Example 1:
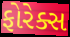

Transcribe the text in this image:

ફોરેક્સ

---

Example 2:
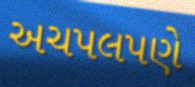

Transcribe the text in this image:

અચપલપણે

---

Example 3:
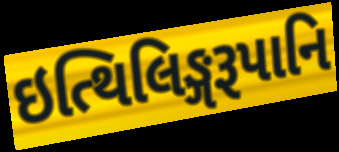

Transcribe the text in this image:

ઇત્થિલિઙ્ગરૂપાનિ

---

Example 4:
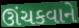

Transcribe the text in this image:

ઊંચકવાને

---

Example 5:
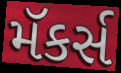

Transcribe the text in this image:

મૅકર્સ